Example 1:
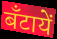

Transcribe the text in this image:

बँटायें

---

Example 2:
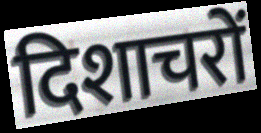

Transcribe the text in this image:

दिशाचरों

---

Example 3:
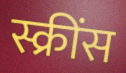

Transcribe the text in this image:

स्क्रींस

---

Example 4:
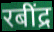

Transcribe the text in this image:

रबींद्र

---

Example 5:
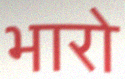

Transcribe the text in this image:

भारो